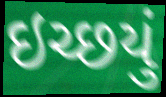
ઇચ્છયું